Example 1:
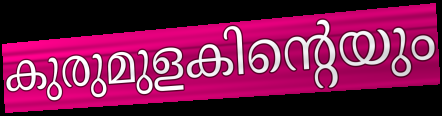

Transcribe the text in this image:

കുരുമുളകിന്റെയും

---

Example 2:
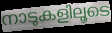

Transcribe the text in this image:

നാടുകളിലൂടെ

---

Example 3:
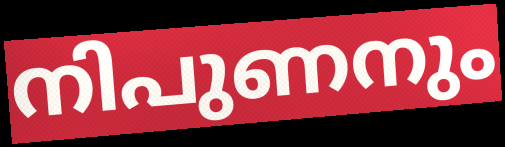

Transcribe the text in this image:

നിപുണനും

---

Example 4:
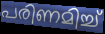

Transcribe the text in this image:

പരിണമിച്ച്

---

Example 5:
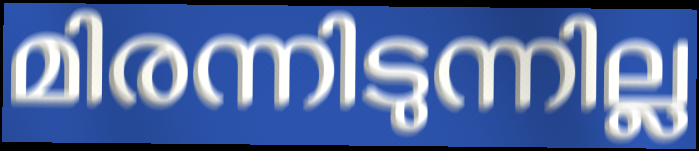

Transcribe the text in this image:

മിരന്നിടുന്നില്ല